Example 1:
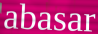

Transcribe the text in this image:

abasar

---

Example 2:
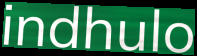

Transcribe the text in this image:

indhulo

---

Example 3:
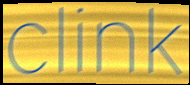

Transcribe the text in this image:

clink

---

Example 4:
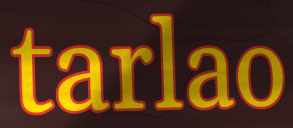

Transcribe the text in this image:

tarlao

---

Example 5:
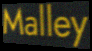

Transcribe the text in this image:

Malley